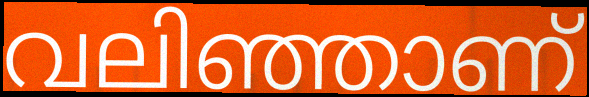
വലിഞ്ഞാണ്